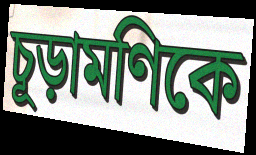
চূড়ামণিকে